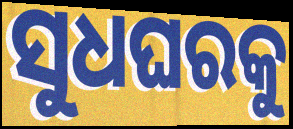
ସୁଧଘରକୁ